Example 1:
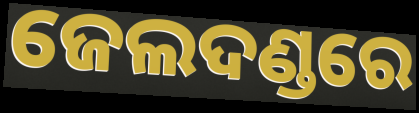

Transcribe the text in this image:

ଜେଲଦଣ୍ଡରେ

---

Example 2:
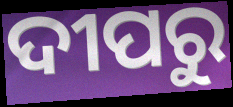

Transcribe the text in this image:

ଦୀପରୁ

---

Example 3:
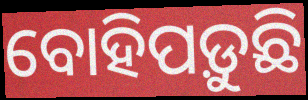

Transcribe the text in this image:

ବୋହିପଡ଼ୁଛି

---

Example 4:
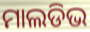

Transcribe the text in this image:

ମାଲଡିଭ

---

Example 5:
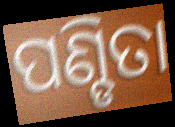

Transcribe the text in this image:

ପଣ୍ଡିତା